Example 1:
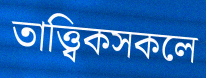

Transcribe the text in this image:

তাত্ত্বিকসকলে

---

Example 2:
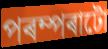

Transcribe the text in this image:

পৰম্পৰাটো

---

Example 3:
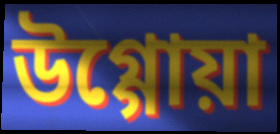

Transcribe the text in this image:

উগ্গোয়া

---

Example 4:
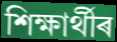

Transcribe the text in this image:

শিক্ষাৰ্থীৰ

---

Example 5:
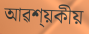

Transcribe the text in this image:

আৱশ্য়কীয়